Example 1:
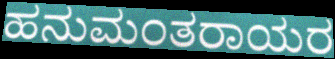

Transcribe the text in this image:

ಹನುಮಂತರಾಯರ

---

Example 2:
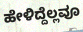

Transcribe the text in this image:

ಹೇಳಿದ್ದೆಲ್ಲವೂ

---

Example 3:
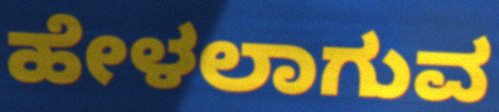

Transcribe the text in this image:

ಹೇಳಲಾಗುವ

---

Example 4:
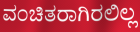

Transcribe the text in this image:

ವಂಚಿತರಾಗಿರಲಿಲ್ಲ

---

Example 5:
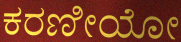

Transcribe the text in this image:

ಕರಣೀಯೋ